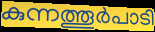
കുന്നത്തൂർപാടി